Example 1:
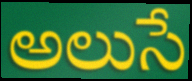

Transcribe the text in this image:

అలుసే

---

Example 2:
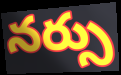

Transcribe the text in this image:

నర్సు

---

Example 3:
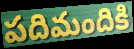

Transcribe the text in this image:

పదిమందికి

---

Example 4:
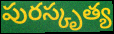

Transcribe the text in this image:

పురస్కృత్య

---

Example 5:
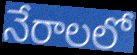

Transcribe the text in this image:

నేరాలలో